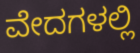
ವೇದಗಳಲ್ಲಿ